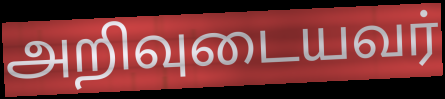
அறிவுடையவர்